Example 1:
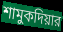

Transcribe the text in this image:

শামুকদিয়ার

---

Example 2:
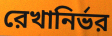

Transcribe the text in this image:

রেখানির্ভর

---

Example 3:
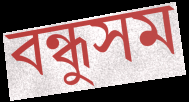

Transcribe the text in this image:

বন্ধুসম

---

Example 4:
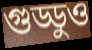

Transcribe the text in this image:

গুড্ডুও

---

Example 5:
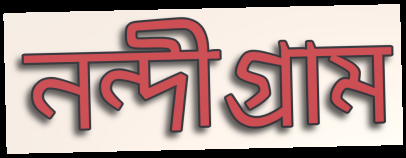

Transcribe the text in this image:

নন্দীগ্রাম